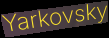
Yarkovsky